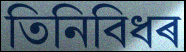
তিনিবিধৰ